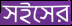
সইসের